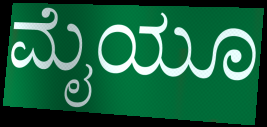
ಮೈಯೂ